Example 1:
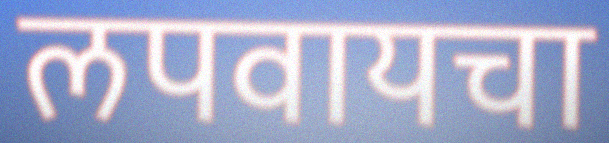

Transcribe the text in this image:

लपवायचा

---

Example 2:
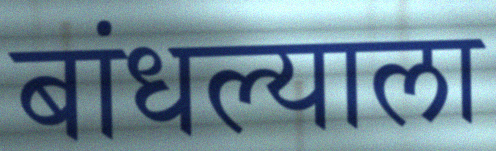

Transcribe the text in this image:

बांधल्याला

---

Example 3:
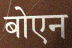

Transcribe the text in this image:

बोएन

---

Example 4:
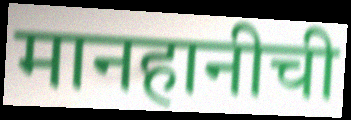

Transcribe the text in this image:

मानहानीची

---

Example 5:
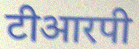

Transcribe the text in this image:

टीआरपी